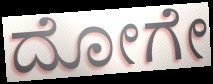
ದೋಗೇ